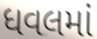
ધવલમાં